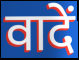
वादें